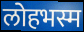
लोहभस्म